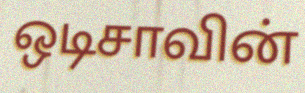
ஒடிசாவின்